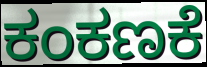
ಕಂಕಣಕೆ